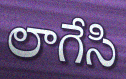
లాగేసి